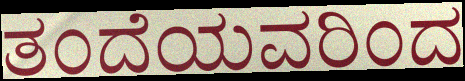
ತಂದೆಯವರಿಂದ